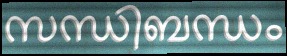
സന്ധിബന്ധം